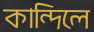
কান্দিলে